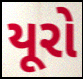
યૂરો